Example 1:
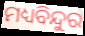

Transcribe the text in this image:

ମଧ୍ୟବିନ୍ଦୁର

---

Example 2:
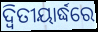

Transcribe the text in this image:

ଦ୍ୱିତୀୟାର୍ଦ୍ଧରେ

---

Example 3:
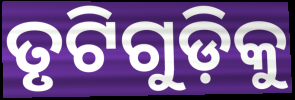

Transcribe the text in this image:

ତୃଟିଗୁଡ଼ିକୁ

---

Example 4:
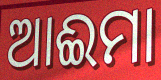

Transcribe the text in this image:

ଆଈମା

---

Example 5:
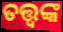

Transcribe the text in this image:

ତତ୍ତ୍ବଙ୍କ